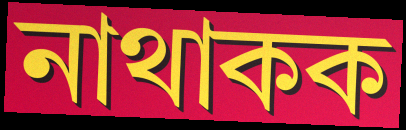
নাথাকক